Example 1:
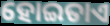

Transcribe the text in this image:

ହୋଇତାଏ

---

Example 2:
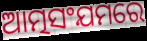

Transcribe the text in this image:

ଆତ୍ମସଂଯମରେ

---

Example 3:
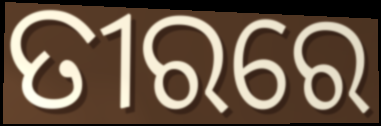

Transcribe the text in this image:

ତୀରରେ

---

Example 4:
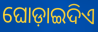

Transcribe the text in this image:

ଘୋଡ଼ାଇଦିଏ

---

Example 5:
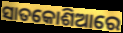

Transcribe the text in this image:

ସାତକୋଶିଆରେ